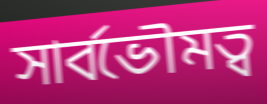
সাৰ্বভৌমত্ব